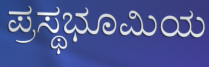
ಪ್ರಸ್ಥಭೂಮಿಯ